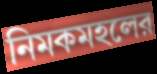
নিমকমহলের